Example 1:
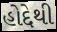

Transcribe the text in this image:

હોદ્દેથી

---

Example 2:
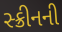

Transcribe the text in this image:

સ્ક્રીનની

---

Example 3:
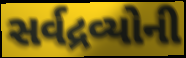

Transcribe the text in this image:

સર્વદ્રવ્યોની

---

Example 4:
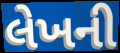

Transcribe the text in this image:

લેખની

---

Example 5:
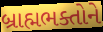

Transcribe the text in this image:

બ્રાહ્મભક્તોને